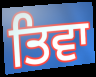
ਤਿਵਾ